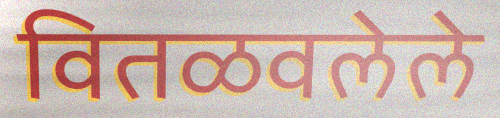
वितळवलेले